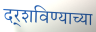
दर्शविण्याच्या